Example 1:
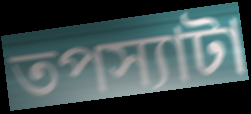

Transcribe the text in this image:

তপস্যাটা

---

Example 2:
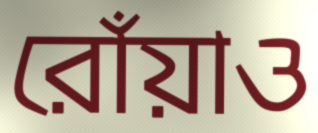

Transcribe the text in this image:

রোঁয়াও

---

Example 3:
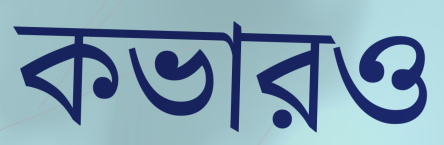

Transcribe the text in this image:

কভারও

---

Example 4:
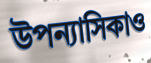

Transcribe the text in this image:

উপন্যাসিকাও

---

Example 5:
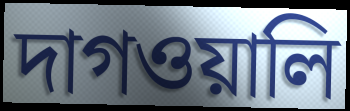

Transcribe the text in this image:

দাগওয়ালি